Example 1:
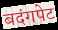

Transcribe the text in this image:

बदंगपेट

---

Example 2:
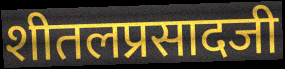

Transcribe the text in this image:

शीतलप्रसादजी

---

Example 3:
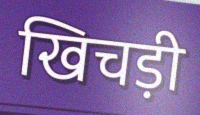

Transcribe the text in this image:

खिचड़ी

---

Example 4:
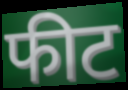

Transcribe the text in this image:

फीट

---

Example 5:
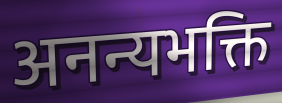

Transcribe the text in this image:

अनन्यभक्ति